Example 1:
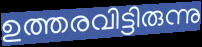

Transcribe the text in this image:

ഉത്തരവിട്ടിരുന്നു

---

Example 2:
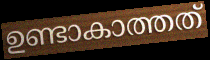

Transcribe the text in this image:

ഉണ്ടാകാത്തത്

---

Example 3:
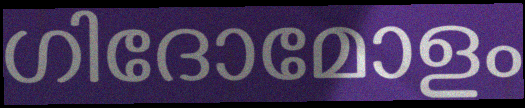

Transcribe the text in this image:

ഗിദോമോളം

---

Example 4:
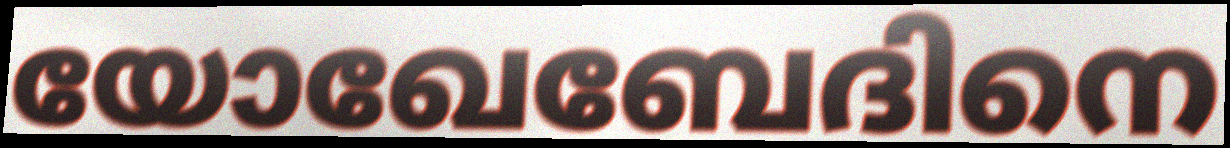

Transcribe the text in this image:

യോഖേബേദിനെ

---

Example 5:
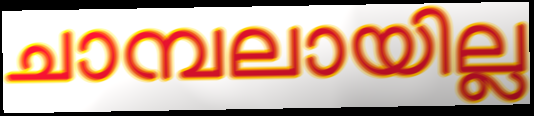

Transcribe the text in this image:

ചാമ്പലായില്ല